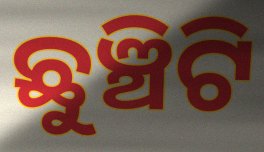
ଛୁଞ୍ଚିଟି